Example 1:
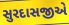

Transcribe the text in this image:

સુરદાસજીએ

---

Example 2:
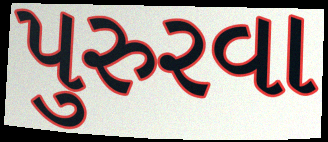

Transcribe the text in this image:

પુરુરવા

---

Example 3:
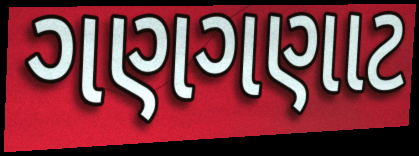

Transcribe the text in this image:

ગણગણાટ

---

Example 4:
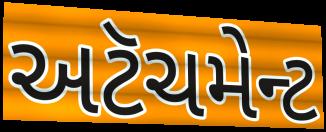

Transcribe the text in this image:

અટૅચમેન્ટ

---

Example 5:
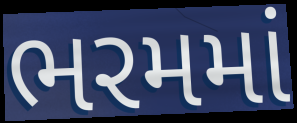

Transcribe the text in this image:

ભરમમાં